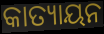
କାତ୍ୟାୟନ